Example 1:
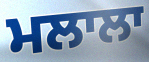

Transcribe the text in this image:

ਮਲਾਲਾ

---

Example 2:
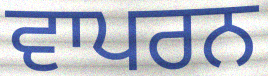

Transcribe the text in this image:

ਵਾਪਰਨ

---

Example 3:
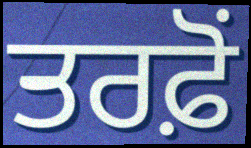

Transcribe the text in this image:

ਤਰਫ਼ੋਂ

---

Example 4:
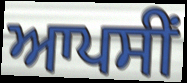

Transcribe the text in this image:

ਆਪਸੀਂ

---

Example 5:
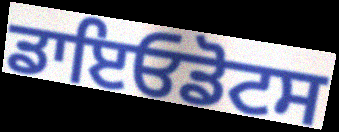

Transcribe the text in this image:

ਡਾਇਓਡੋਟਸ